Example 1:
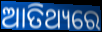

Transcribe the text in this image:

ଆତିଥ୍ୟରେ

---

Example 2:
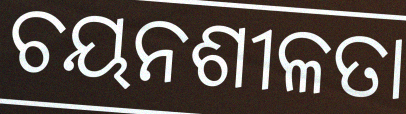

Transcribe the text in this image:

ଚୟନଶୀଳତା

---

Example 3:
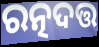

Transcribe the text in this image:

ରତ୍ନଦତ୍ତ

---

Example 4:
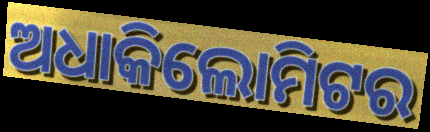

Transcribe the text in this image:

ଅଧାକିଲୋମିଟର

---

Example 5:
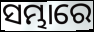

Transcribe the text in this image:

ସମ୍ଭାରେ